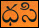
ధసి